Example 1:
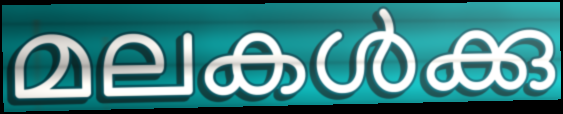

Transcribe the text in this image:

മലകൾക്കു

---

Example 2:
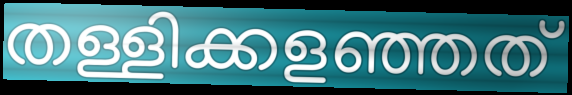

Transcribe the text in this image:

തള്ളിക്കളഞ്ഞത്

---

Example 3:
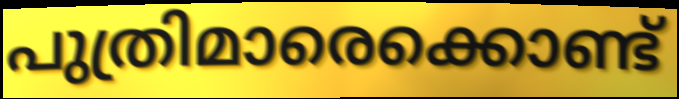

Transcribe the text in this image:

പുത്രിമാരെക്കൊണ്ട്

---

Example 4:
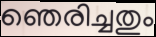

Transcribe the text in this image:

ഞെരിച്ചതും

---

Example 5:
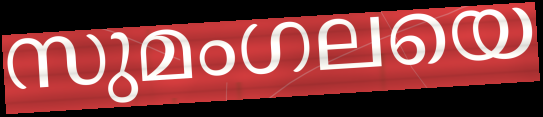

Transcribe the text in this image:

സുമംഗലയെ